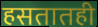
हसतातही